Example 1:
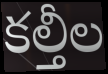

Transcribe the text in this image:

కల్తీల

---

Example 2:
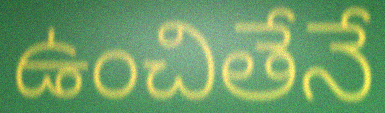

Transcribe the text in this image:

ఉంచితేనే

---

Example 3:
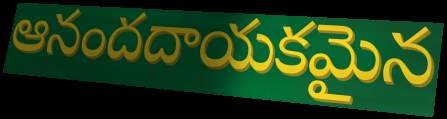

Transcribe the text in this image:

ఆనందదాయకమైన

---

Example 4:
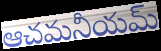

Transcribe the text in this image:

ఆచమనీయమ్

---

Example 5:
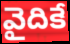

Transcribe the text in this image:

వైదికే